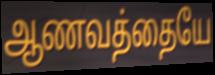
ஆணவத்தையே